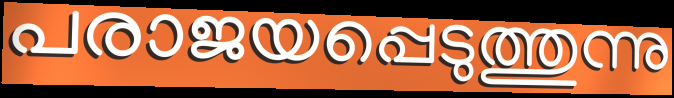
പരാജയപ്പെടുത്തുന്നു